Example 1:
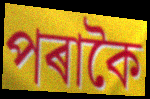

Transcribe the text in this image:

পৰাকৈ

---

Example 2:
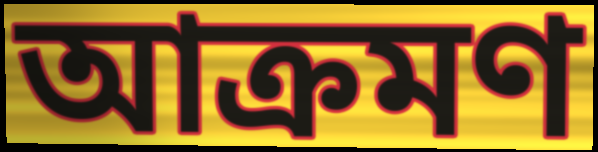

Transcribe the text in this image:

আক্ৰমণ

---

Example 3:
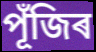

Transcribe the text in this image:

পূঁজিৰ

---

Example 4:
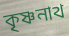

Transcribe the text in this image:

কৃষ্ণনাথ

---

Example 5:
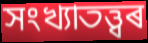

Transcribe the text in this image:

সংখ্যাতত্ত্বৰ